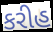
કરીહ